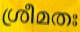
ശ്രീമതഃ